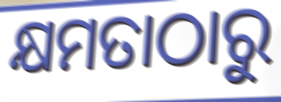
କ୍ଷମତାଠାରୁ